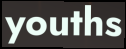
youths